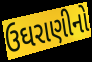
ઉઘરાણીનો